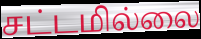
சட்டமில்லை